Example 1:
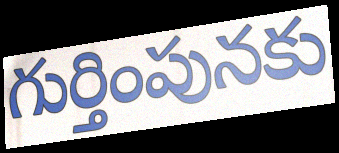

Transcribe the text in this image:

గుర్తింపునకు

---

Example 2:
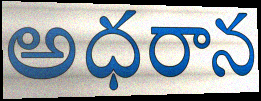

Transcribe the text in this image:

అధరాన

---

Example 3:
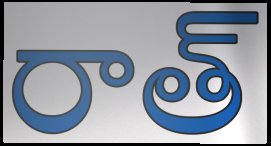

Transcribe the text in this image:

రాత్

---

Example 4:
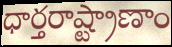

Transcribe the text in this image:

ధార్తరాష్ట్రాణాం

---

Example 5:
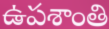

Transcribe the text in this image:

ఉపశాంతి